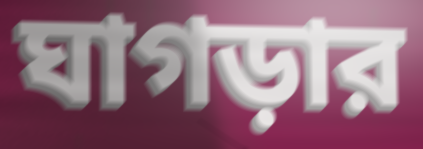
ঘাগড়ার